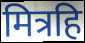
मित्रहि